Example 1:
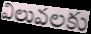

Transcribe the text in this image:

విలువలకు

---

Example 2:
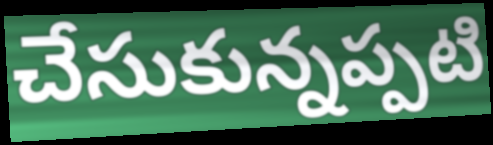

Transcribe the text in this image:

చేసుకున్నప్పటి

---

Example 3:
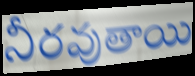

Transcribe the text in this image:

నీరవుతాయి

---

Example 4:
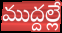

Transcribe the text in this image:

ముద్దల్లే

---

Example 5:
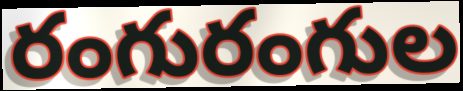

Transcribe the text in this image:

రంగురంగుల